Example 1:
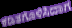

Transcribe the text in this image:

ಕಡಿತಗೊಳಿಸಿದಾಗ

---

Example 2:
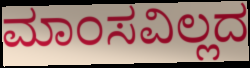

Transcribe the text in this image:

ಮಾಂಸವಿಲ್ಲದ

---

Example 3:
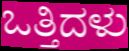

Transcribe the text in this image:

ಒತ್ತಿದಳು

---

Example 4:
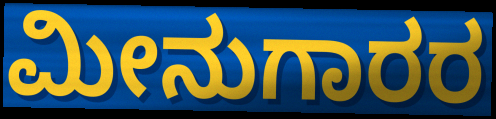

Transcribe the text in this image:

ಮೀನುಗಾರರ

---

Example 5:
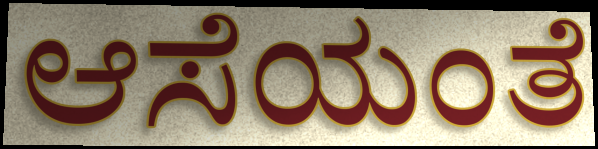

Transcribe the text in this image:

ಆಸೆಯಂತೆ